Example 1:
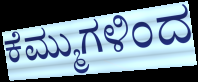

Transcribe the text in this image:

ಕೆಮ್ಮುಗಳಿಂದ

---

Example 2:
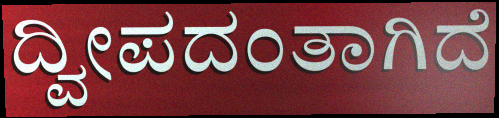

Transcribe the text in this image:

ದ್ವೀಪದಂತಾಗಿದೆ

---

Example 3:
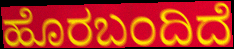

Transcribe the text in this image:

ಹೊರಬಂದಿದೆ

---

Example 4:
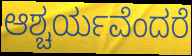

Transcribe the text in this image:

ಆಶ್ಚರ್ಯವೆಂದರೆ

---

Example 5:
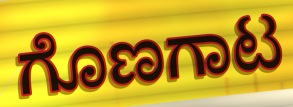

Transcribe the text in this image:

ಗೊಣಗಾಟ